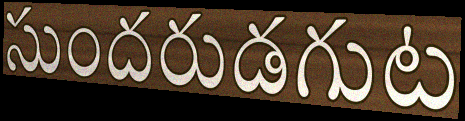
సుందరుడగుట